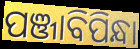
ପଞ୍ଜାବିପିନ୍ଧା